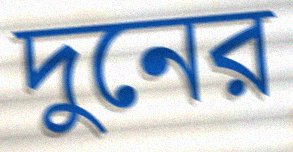
দুনের